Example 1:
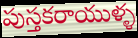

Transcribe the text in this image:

పుస్తకరాయుళ్ళ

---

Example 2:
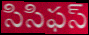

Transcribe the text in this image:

సిసిఫస్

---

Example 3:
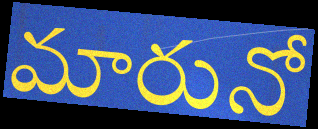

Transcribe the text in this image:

మారునో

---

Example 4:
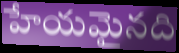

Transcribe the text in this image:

హేయమైనది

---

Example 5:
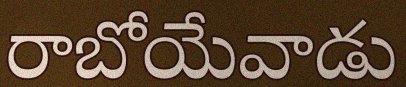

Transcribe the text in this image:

రాబోయేవాడు